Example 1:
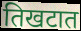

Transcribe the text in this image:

तिखटात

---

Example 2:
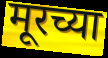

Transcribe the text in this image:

मूरच्या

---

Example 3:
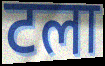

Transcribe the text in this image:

टला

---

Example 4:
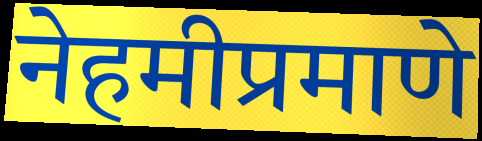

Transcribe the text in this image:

नेहमीप्रमाणे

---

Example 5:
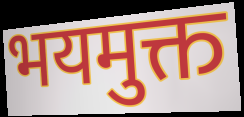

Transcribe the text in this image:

भयमुक्त